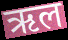
ऋल